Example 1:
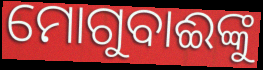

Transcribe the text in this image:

ମୋଗୁବାଈଙ୍କୁ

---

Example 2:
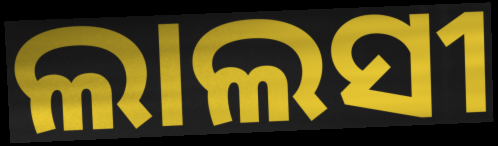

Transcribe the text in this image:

ଲାଲସୀ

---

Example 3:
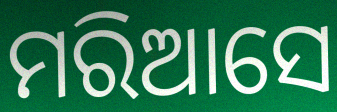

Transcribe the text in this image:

ମରିଆସେ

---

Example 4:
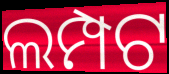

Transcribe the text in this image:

ଲମ୍ପଟ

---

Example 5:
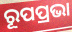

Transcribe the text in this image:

ରୂପପ୍ରଭା